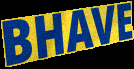
BHAVE